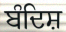
ਬੰਦਿਸ਼